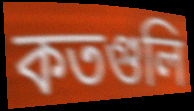
কতগুলি